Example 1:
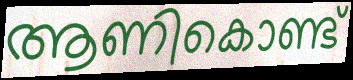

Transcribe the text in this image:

ആണികൊണ്ട്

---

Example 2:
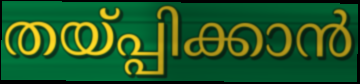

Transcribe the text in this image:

തയ്പ്പിക്കാൻ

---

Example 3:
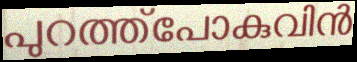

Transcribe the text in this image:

പുറത്ത്പോകുവിൻ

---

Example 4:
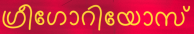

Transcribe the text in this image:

ഗ്രീഗോറിയോസ്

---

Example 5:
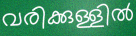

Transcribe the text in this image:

വരിക്കുള്ളിൽ